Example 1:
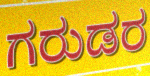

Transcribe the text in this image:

ಗರುಡರ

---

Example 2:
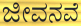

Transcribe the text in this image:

ಜೀವನವೆ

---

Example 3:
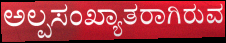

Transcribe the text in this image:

ಅಲ್ಪಸಂಖ್ಯಾತರಾಗಿರುವ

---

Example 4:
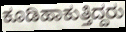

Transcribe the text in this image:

ಕೂಡಿಹಾಕುತ್ತಿದ್ದರು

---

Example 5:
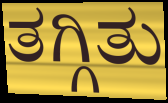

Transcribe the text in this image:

ತಗ್ಗಿತು